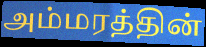
அம்மரத்தின்